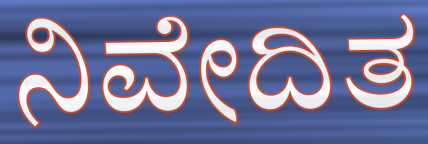
ನಿವೇದಿತ